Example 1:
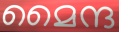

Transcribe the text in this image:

മൈന്ദ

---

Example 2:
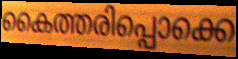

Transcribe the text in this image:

കൈത്തരിപ്പൊക്കെ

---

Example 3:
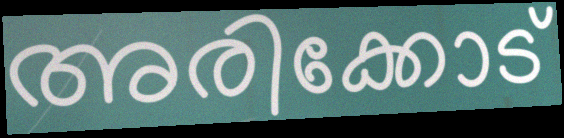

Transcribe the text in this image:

അരിക്കോട്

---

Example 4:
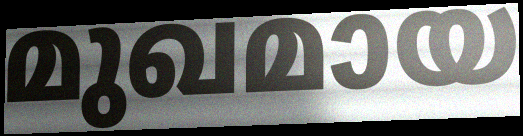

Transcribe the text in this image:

മുഖമായ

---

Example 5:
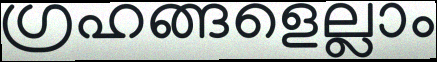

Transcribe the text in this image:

ഗ്രഹങ്ങളെല്ലാം